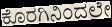
ಕೊರಗಿನಿಂದಲೇ